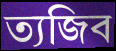
ত্যজিব